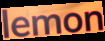
lemon